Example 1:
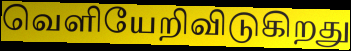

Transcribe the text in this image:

வெளியேறிவிடுகிறது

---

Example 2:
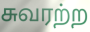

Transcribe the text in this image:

சுவரற்ற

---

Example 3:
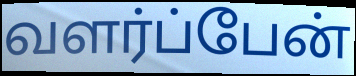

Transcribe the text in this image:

வளர்ப்பேன்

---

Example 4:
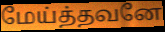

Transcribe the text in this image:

மேய்த்தவனே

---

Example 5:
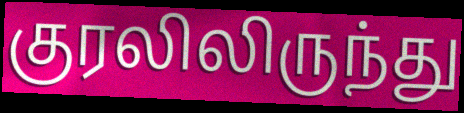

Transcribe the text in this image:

குரலிலிருந்து